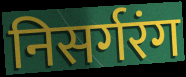
निसर्गरंग